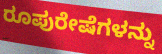
ರೂಪುರೇಷೆಗಳನ್ನು